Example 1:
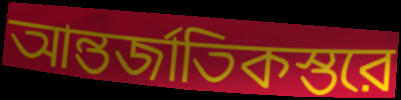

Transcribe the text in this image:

আন্তর্জাতিকস্তরে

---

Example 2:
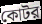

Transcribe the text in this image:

কোটর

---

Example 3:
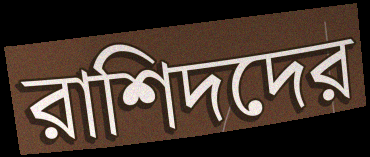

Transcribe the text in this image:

রাশিদদের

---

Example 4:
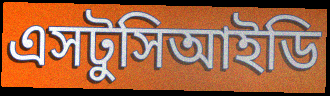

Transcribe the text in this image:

এসটুসিআইডি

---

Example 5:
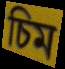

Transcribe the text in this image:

চিম